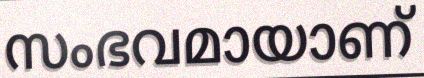
സംഭവമായാണ്